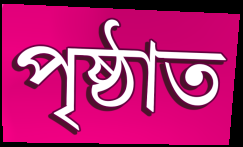
পৃষ্ঠাত